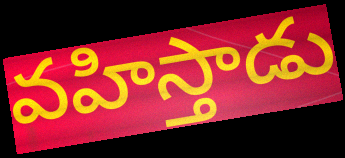
వహిస్తాడు